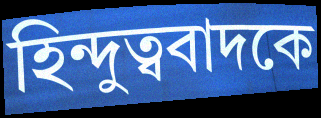
হিন্দুত্ববাদকে